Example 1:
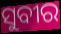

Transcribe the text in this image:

ସୁବୀର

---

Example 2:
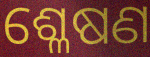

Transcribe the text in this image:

ଶ୍ଳେଷଣ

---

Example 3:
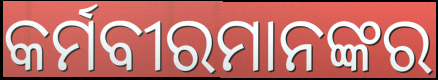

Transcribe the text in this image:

କର୍ମବୀରମାନଙ୍କର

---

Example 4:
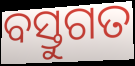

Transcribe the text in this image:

ବସ୍ତୁଗତ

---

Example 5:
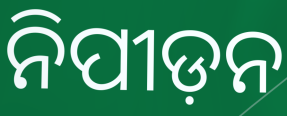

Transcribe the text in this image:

ନିପୀଡ଼ନ